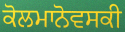
ਕੋਲਮਾਨੋਵਸਕੀ